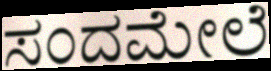
ಸಂದಮೇಲೆ